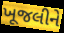
ખૂજલીને